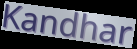
Kandhar